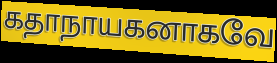
கதாநாயகனாகவே